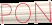
PON